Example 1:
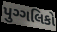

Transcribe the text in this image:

પુગ્ગલિકો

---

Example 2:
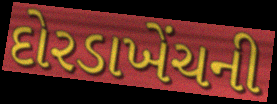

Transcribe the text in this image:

દોરડાખેંચની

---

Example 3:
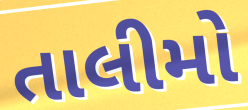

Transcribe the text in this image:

તાલીમો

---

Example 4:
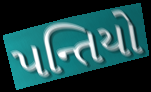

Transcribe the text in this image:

પન્તિયો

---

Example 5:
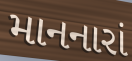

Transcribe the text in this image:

માનનારાં